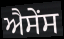
ਐਸੇਂਸ